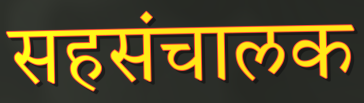
सहसंचालक